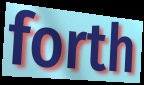
forth